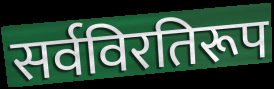
सर्वविरतिरूप